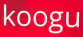
koogu